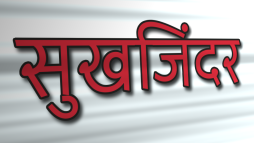
सुखजिंदर